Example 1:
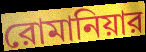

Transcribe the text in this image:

রোমানিয়ার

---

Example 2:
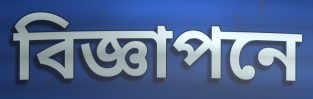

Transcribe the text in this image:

বিজ্ঞাপনে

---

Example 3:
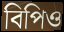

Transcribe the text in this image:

বিপিও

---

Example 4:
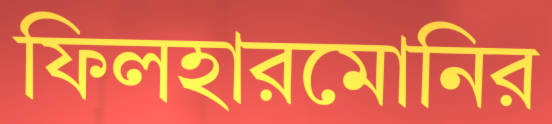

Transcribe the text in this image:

ফিলহারমোনির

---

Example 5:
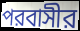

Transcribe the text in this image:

পরবাসীর